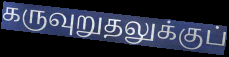
கருவுறுதலுக்குப்